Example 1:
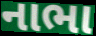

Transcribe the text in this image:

નાભા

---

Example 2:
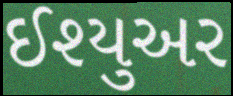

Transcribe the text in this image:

ઈશ્યુઅર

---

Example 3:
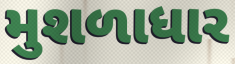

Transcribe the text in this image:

મુશળાધાર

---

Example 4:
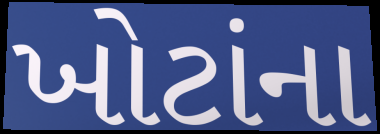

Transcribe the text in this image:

ખોટાંના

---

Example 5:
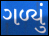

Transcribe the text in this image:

ગળ્યું